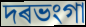
দৰভংগা